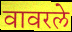
वावरले